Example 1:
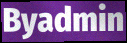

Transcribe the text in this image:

Byadmin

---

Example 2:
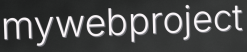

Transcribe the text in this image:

mywebproject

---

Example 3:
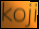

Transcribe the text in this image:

koji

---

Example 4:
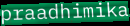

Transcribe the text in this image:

praadhimika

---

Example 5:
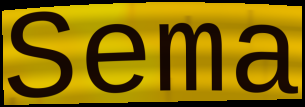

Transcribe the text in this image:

Sema